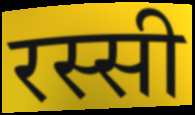
रस्‍सी